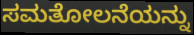
ಸಮತೋಲನೆಯನ್ನು